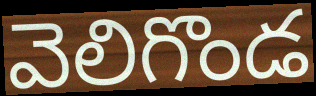
వెలిగొండ